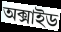
অক্সাইড